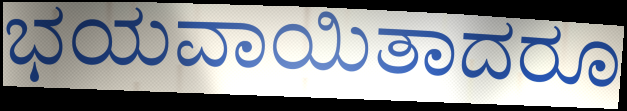
ಭಯವಾಯಿತಾದರೂ